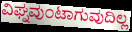
ವಿಘ್ನವುಂಟಾಗುವುದಿಲ್ಲ